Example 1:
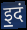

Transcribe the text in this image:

इ॒दं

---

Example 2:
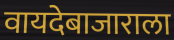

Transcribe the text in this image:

वायदेबाजाराला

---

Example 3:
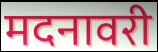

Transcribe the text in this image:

मदनावरी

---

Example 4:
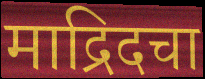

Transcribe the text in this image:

माद्रिदचा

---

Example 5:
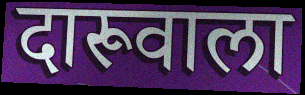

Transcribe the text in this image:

दारूवाला